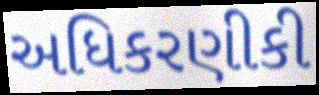
અધિકરણીકી